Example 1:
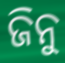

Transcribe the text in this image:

ଜିନୁ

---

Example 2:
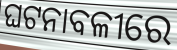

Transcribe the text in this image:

ଘଟନାବଳୀରେ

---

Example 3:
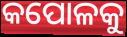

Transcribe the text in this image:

କପୋଳକୁ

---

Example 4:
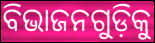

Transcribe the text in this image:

ବିଭାଜନଗୁଡ଼ିକୁ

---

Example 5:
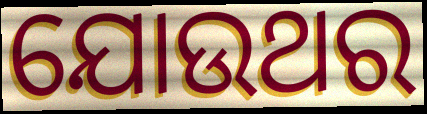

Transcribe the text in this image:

ଯୋଉଥର